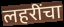
लहरींचा